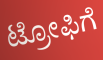
ಟ್ರೋಫಿಗೆ